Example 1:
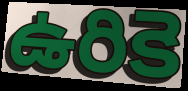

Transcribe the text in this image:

ఉరికె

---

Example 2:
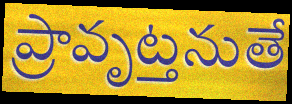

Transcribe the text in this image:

ప్రావృట్తనుతే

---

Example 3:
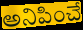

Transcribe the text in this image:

అనిపించే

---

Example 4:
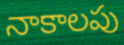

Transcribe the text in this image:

నాకాలపు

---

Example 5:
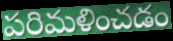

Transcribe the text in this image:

పరిమళించడం